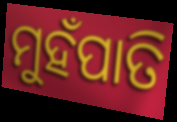
ମୁହଁପାତି